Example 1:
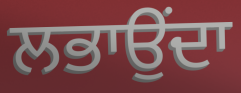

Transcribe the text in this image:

ਲਭਾਉਂਦਾ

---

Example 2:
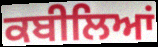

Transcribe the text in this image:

ਕਬੀਲਿਆਂ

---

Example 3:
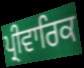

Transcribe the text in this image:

ਪ੍ਰੀਵਾਰਿਕ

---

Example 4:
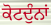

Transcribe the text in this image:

ਕੋਟਦੁੰਨਾਂ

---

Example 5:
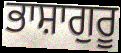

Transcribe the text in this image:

ਭਾਸ਼ਾਗੁਰੂ